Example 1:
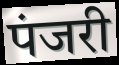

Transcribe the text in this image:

पंजरी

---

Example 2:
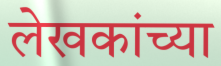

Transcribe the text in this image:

लेखकांच्या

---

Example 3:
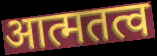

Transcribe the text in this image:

आत्मतत्व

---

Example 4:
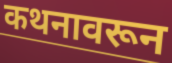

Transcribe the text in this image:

कथनावरून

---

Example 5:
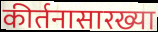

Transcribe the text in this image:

कीर्तनासारख्या